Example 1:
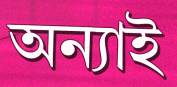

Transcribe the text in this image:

অন্যাই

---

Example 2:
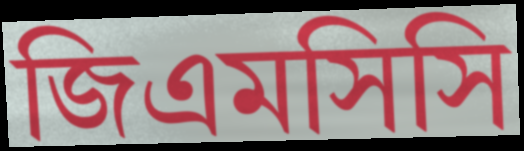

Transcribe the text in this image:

জিএমসিসি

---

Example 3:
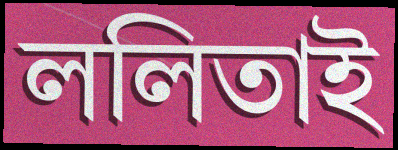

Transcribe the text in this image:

ললিতাই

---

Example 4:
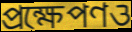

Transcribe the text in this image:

প্রক্ষেপণও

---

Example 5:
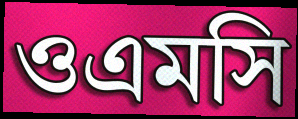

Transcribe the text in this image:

ওএমসি